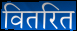
वितरित